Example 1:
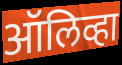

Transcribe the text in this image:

ऑलिव्हा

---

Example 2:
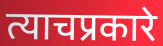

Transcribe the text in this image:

त्याचप्रकारे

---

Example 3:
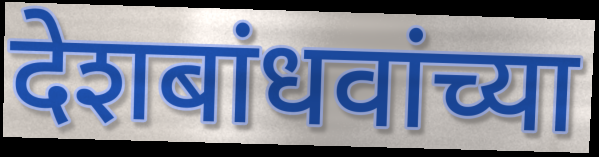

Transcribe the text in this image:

देशबांधवांच्या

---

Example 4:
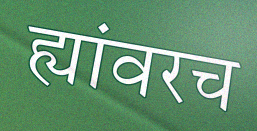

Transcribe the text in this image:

ह्यांवरच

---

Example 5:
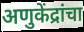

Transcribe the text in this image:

अणुकेंद्रांचा